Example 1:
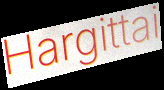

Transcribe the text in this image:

Hargittai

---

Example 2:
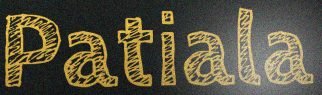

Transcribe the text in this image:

Patiala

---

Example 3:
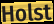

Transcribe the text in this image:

Holst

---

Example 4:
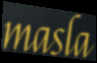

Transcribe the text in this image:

masla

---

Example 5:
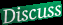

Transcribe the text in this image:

Discuss